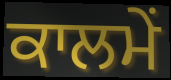
ਕਾਲਮੇਂ